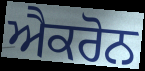
ਐਕਰੋਨ